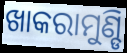
ଖାକରାମୁଣ୍ଡି